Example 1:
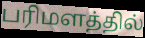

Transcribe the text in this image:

பரிமளத்தில்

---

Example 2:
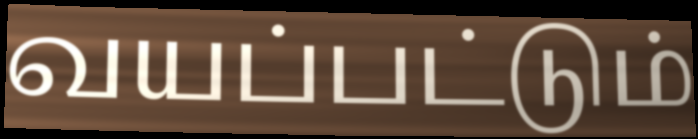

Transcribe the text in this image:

வயப்பட்டும்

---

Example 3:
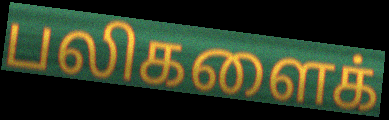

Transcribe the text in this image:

பலிகளைக்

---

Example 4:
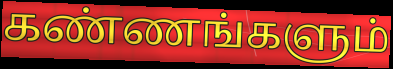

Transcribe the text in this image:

கண்ணங்களும்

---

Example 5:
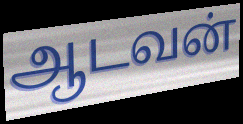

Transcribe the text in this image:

ஆடவன்